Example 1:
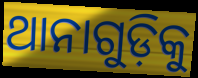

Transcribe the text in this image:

ଥାନାଗୁଡ଼ିକୁ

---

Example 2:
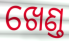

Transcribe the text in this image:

ଖେଣ୍ଡ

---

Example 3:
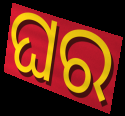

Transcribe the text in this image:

ଘର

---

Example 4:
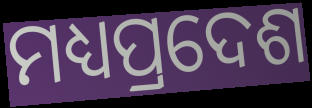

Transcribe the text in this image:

ମଧ୍ୟପ୍ରଦେଶ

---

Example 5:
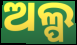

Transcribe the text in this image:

ଅଲ୍ପ